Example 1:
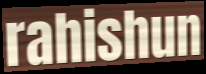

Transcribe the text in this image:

rahishun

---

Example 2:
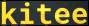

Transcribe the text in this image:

kitee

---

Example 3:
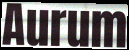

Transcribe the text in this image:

Aurum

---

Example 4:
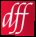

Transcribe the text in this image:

dff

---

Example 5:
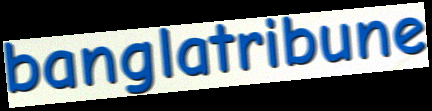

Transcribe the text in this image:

banglatribune